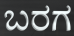
ಬರಗ